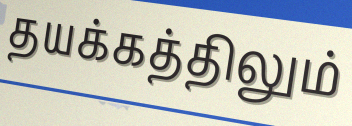
தயக்கத்திலும்